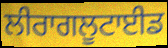
ਲੀਰਾਗਲੂਟਾਈਡ